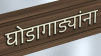
घोडागाड्यांना